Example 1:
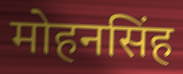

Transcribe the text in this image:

मोहनसिंह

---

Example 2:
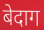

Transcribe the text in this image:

बेदाग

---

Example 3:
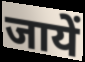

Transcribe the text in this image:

जायें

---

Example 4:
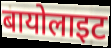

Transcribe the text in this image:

बायोलाइट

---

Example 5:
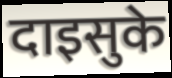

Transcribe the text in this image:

दाइसुके